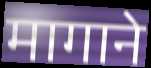
मागाने